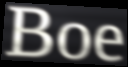
Boe